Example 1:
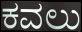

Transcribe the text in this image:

ಕವಲು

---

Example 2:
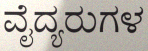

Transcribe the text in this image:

ವೈದ್ಯರುಗಳ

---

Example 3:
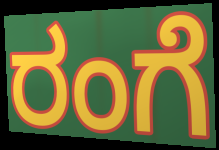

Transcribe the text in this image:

ರಂಗೆ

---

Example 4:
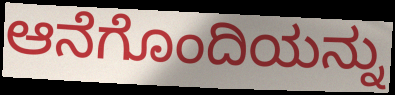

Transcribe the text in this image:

ಆನೆಗೊಂದಿಯನ್ನು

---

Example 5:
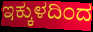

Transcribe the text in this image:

ಇಕ್ಕುಳದಿಂದ